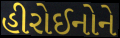
હીરોઈનોને